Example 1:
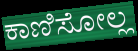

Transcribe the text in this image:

ಕಾಣಿಸೋಲ್ಲ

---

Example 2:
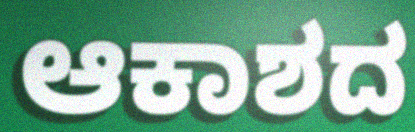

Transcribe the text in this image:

ಆಕಾಶದ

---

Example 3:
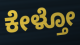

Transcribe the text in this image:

ಕೇಳ್ತೋ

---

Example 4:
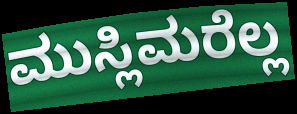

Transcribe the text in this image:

ಮುಸ್ಲಿಮರೆಲ್ಲ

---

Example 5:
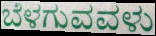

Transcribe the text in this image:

ಬೆಳಗುವವಳು